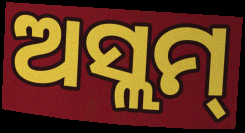
ଅସ୍ଲମ୍